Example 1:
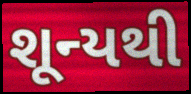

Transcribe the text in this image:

શૂન્યથી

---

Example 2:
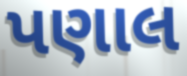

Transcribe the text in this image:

પણાલ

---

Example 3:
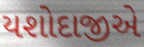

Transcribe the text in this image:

યશોદાજીએ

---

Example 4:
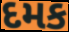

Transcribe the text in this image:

દમક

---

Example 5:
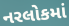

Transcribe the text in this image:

નરલોકમાં